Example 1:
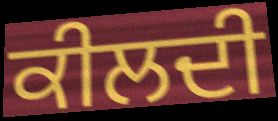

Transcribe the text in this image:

ਕੀਲਦੀ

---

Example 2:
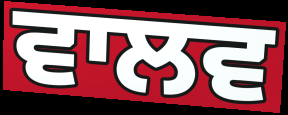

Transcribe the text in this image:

ਵਾਲਵ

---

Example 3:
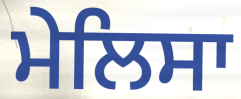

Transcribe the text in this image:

ਮੇਲਿਸਾ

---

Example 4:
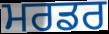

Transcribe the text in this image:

ਮਰਡਰ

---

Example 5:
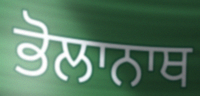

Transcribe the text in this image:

ਭੋਲਾਨਾਥ